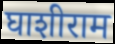
घाशीराम